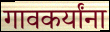
गावकर्यांना